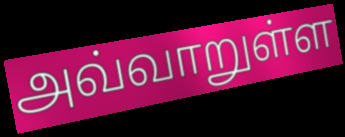
அவ்வாறுள்ள